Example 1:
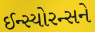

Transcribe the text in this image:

ઈન્સ્યોરન્સને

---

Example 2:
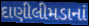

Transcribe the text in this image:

દાણીલીમડાનાં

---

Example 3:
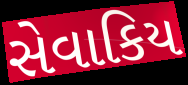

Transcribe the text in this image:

સેવાકિય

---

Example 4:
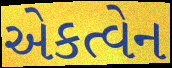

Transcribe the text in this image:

એકત્વેન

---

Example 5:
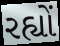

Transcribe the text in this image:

રહ્યોં